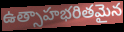
ఉత్సాహభరితమైన